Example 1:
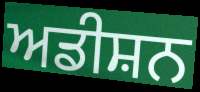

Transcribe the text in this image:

ਅਡੀਸ਼ਨ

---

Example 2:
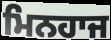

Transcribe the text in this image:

ਮਿਨਹਾਜ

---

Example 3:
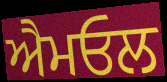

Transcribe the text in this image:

ਐਮਓਲ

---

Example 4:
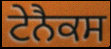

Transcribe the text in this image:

ਟੇਨੈਕਸ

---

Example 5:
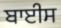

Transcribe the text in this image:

ਬਾਈਸ